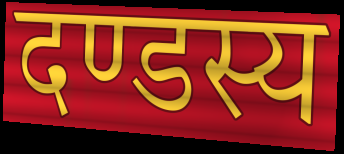
दण्डस्य